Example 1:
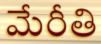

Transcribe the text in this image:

మేరీతి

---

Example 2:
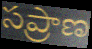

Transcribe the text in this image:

సప్రాణ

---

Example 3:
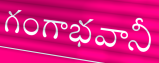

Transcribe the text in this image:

గంగాభవానీ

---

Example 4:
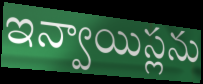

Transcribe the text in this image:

ఇన్వాయిస్లను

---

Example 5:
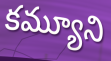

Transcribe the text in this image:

కమ్యూని